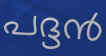
പദ്ദൻ